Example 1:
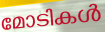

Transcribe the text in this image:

മോടികൾ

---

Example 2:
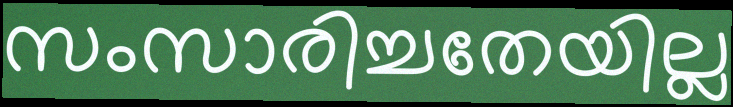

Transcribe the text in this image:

സംസാരിച്ചതേയില്ല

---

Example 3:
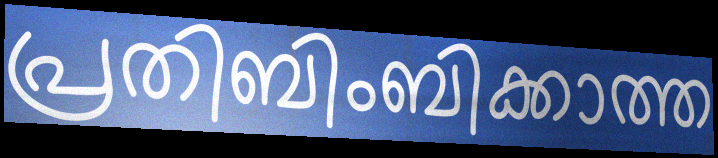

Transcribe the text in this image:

പ്രതിബിംബിക്കാത്ത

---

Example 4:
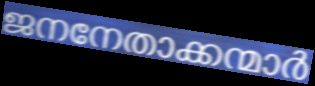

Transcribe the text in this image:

ജനനേതാക്കന്മാർ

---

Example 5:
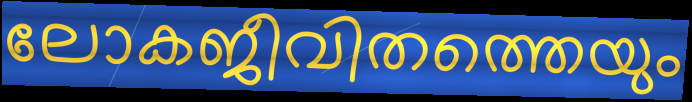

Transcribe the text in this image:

ലോകജീവിതത്തെയും